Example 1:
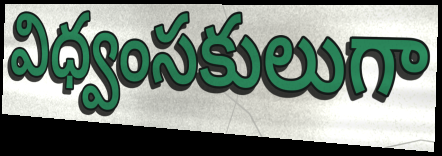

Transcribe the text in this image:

విధ్వంసకులుగా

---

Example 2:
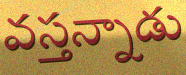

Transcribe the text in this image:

వస్తన్నాడు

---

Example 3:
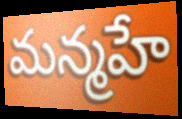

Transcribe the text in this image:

మన్మహే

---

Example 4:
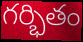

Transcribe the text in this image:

గర్భితం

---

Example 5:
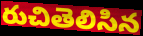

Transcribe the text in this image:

రుచితెలిసిన